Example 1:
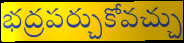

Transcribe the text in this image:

భద్రపర్చుకోవచ్చు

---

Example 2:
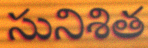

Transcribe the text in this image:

సునిశిత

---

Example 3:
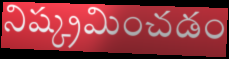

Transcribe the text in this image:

నిష్క్రమించడం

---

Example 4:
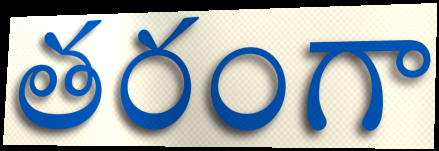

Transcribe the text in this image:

తరంగా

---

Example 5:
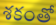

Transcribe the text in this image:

శకంతో